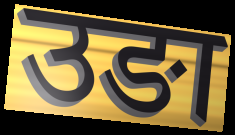
उङा